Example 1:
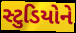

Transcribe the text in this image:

સ્ટુડિયોને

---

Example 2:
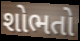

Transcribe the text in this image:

શોભતો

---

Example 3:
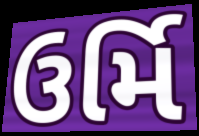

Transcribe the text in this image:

ઉર્મિ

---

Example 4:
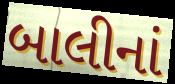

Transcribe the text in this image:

બાલીનાં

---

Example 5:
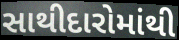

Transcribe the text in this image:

સાથીદારોમાંથી